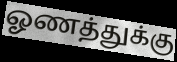
ஓணத்துக்கு